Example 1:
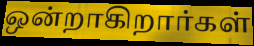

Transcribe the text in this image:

ஒன்றாகிறார்கள்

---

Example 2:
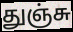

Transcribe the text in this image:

துஞ்சு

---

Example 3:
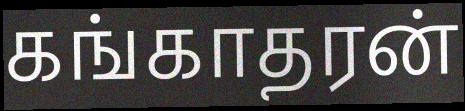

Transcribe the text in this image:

கங்காதரன்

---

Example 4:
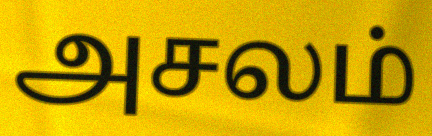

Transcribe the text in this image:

அசலம்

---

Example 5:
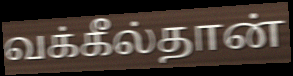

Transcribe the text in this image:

வக்கீல்தான்